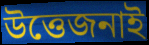
উত্তেজনাই